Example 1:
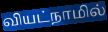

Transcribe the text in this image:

வியட்நாமில்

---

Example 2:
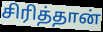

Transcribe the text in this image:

சிரித்தான்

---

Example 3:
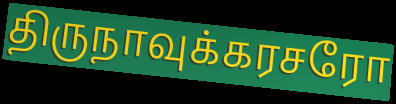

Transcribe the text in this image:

திருநாவுக்கரசரோ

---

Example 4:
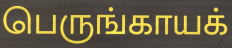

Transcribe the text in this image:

பெருங்காயக்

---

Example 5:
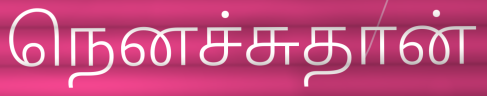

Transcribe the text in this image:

நெனச்சுதான்